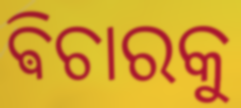
ଵିଚାରକୁ